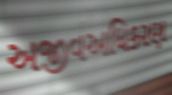
અજીવઅધિકરણ